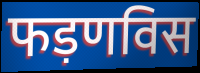
फड़णविस